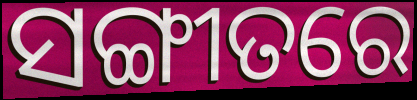
ସଙ୍ଗୀତରେ